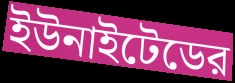
ইউনাইটেডের